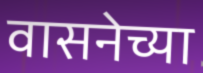
वासनेच्या